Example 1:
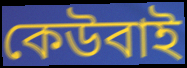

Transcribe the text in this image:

কেউবাই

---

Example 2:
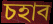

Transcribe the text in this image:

চহাব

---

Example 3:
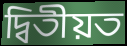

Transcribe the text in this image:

দ্বিতীয়ত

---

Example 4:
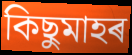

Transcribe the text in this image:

কিছুমাহৰ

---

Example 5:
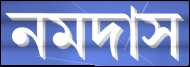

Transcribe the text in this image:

নমদাস